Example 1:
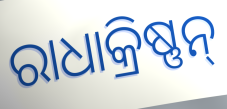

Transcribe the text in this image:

ରାଧାକ୍ରିଷ୍ଣନ୍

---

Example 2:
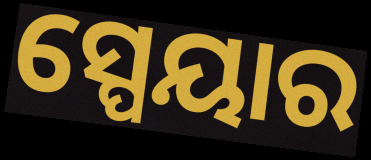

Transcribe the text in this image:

ସ୍ପେୟାର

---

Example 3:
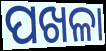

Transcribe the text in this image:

ପଖଳା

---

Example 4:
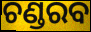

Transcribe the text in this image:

ଚଣ୍ଡରବ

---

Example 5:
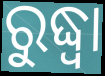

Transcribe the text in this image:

ରୁଦ୍ଧ୍ୱା